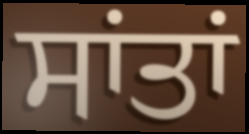
ਸਾਂਤਾਂ